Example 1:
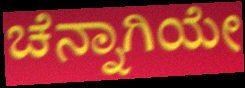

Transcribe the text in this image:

ಚೆನ್ನಾಗಿಯೇ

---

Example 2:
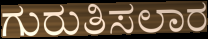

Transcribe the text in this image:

ಗುರುತಿಸಲಾರ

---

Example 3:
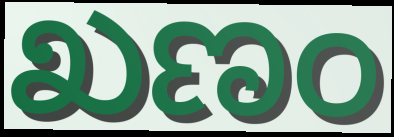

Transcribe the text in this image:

ಖಣಂ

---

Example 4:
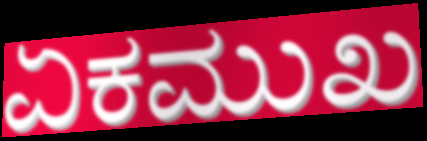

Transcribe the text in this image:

ಏಕಮುಖ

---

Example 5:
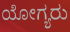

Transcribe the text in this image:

ಯೋಗ್ಯರು